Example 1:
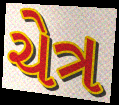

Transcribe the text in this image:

ચેત્ર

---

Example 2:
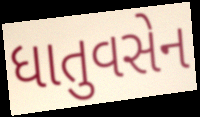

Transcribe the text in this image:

ધાતુવસેન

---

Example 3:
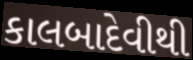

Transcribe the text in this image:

કાલબાદેવીથી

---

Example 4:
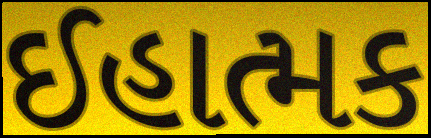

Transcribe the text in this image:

ઈહાત્મક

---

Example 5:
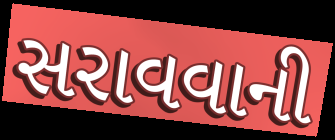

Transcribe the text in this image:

સરાવવાની